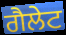
ਗੈਲੇਟ